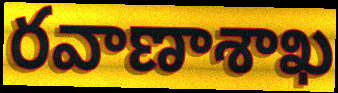
రవాణాశాఖ